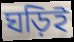
ঘড়িই